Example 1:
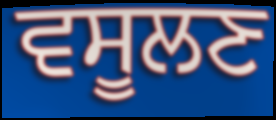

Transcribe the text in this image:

ਵਸੂਲਣ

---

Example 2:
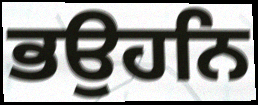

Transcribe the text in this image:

ਭਉਹਨਿ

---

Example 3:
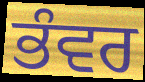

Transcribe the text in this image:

ਭੰਵਰ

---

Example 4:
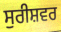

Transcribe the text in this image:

ਸੁਰੀਸ਼ਵਰ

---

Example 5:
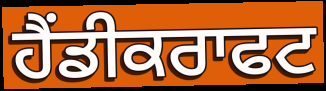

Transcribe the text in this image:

ਹੈਂਡੀਕਰਾਫਟ